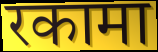
रकामा